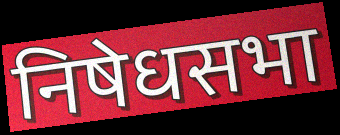
निषेधसभा